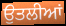
ਉਤਲੀਆਂ